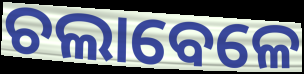
ଚଲାବେଳେ